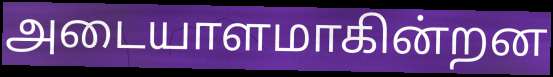
அடையாளமாகின்றன